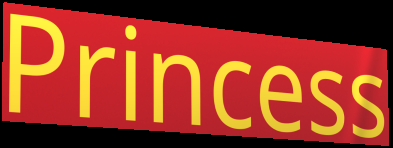
Princess